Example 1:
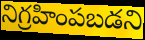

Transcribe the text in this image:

నిగ్రహింపబడని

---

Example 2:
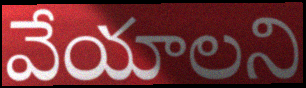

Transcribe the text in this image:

వేయాలని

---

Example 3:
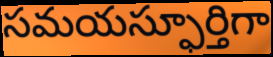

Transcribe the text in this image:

సమయస్ఫూర్తిగా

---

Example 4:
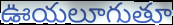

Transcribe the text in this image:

ఊయలూగుతూ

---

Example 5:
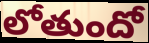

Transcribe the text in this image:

లోతుందో